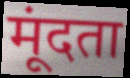
मूंदता